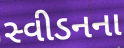
સ્વીડનના